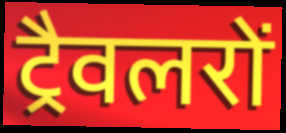
ट्रैवलरों